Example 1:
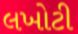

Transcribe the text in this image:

લખોટી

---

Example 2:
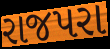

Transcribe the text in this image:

રાજપરા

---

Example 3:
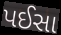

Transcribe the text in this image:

પઈસા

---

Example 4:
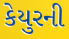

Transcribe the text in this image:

કેયુરની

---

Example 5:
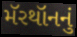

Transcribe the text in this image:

મૅરથૉનનું